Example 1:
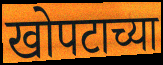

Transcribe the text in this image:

खोपटाच्या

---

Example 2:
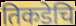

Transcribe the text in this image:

तिकडेचि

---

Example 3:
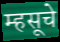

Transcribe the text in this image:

म्हसूचे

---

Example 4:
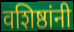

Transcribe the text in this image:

वशिष्ठांनी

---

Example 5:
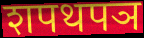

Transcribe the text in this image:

शपथपञ